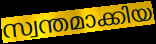
സ്വന്തമാക്കിയ